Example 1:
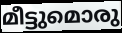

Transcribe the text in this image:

മീട്ടുമൊരു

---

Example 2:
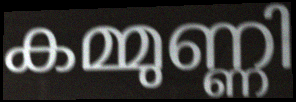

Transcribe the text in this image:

കമ്മുണ്ണി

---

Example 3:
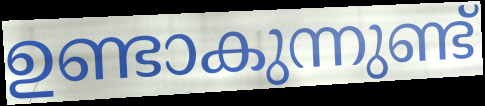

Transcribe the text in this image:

ഉണ്ടാകുന്നുണ്ട്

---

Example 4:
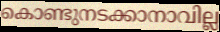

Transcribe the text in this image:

കൊണ്ടുനടക്കാനാവില്ല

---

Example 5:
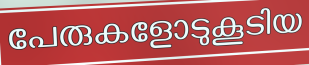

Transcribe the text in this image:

പേരുകളോടുകൂടിയ